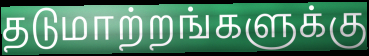
தடுமாற்றங்களுக்கு